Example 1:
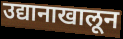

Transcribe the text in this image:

उद्यानाखालून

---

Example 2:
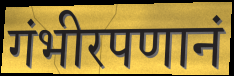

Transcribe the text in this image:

गंभीरपणानं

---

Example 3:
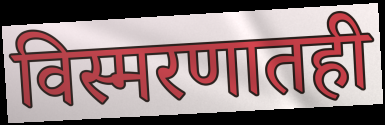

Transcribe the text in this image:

विस्मरणातही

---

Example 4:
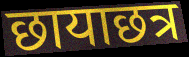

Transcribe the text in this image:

छायाछत्र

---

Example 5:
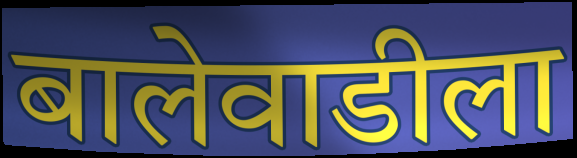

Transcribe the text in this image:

बालेवाडीला